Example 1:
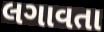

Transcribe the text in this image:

લગાવતા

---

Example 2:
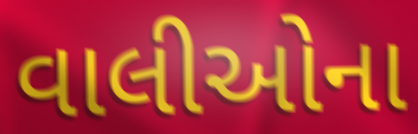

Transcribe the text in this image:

વાલીઓના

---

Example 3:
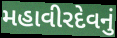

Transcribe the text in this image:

મહાવીરદેવનું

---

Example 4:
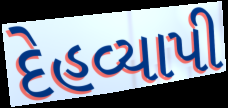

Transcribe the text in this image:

દેહવ્યાપી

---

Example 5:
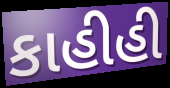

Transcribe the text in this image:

કાહીહી